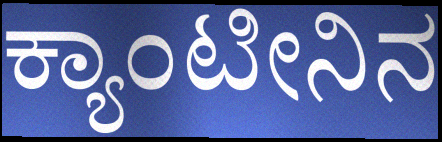
ಕ್ಯಾಂಟೀನಿನ